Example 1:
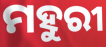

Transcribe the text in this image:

ମହୁରୀ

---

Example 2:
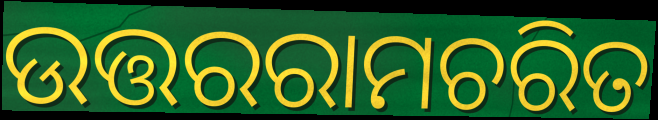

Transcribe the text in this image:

ଉତ୍ତରରାମଚରିତ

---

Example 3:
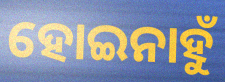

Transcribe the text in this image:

ହୋଇନାହୁଁ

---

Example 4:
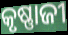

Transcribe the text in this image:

କୃଷ୍ଣାଜୀ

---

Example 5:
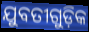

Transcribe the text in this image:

ଯୁବତୀଗୁଡ଼ିକ